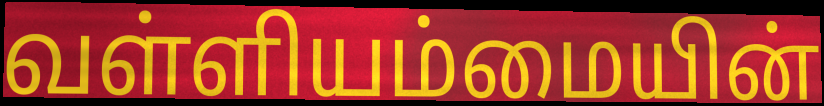
வள்ளியம்மையின்